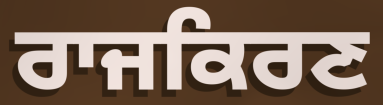
ਰਾਜਕਿਰਣ